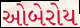
ઓબેરોય